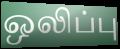
ஒலிப்பு